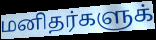
மனிதர்களுக்